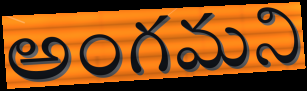
అంగమని